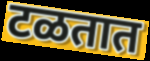
टळतात